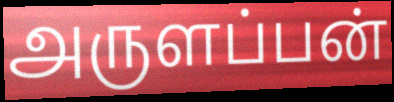
அருளப்பன்